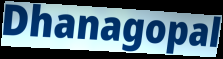
Dhanagopal